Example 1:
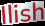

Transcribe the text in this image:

Ilish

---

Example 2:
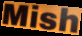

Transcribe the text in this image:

Mish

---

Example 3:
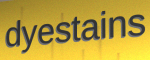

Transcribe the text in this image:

dyestains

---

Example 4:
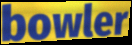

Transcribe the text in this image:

bowler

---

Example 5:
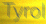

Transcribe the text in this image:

Tyrol